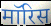
मॉरिस